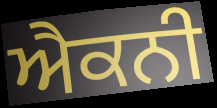
ਐਕਨੀ